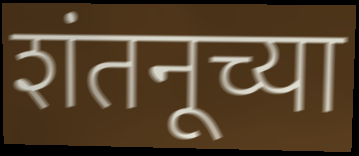
शंतनूच्या